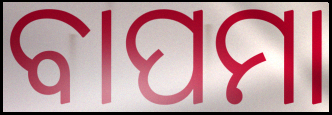
ବାପମା